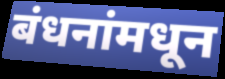
बंधनांमधून